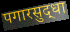
पगारसुद्धा